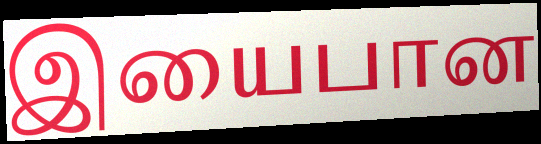
இயைபான